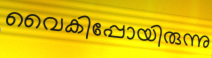
വൈകിപ്പോയിരുന്നു